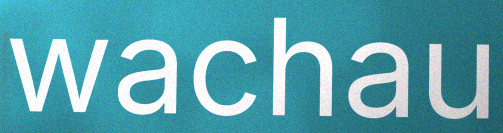
wachau